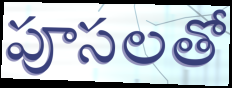
పూసలతో